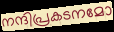
നന്ദിപ്രകടനമോ